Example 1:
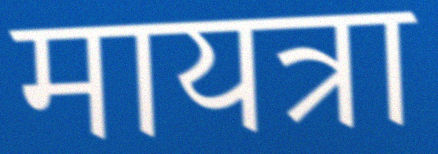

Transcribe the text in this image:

मायत्रा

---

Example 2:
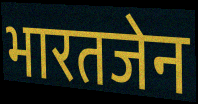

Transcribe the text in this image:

भारतजेन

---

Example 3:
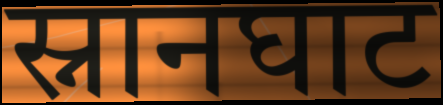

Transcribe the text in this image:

स्नानघाट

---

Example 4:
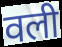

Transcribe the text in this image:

वली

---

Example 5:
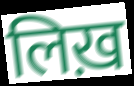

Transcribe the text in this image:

लिख़